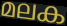
മലക